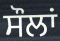
ਸੌਲਾਂ